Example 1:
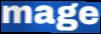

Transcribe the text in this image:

mage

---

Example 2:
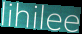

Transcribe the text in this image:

lihilee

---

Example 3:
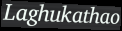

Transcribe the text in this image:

Laghukathao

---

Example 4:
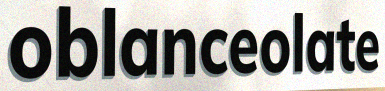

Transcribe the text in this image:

oblanceolate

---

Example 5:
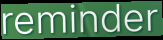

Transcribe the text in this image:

reminder